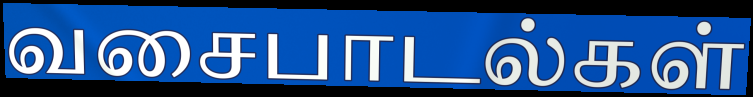
வசைபாடல்கள்